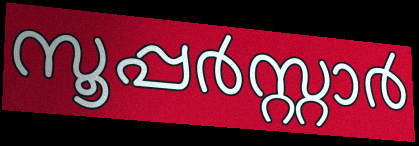
സൂപ്പർസ്റ്റാർ